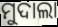
ମୁଦାଲା